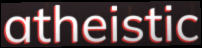
atheistic